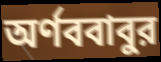
অর্ণববাবুর